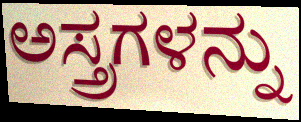
ಅಸ್ತ್ರಗಳನ್ನು